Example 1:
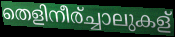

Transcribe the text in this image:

തെളിനീര്ച്ചാലുകള്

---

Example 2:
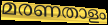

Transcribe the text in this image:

മരണതാളം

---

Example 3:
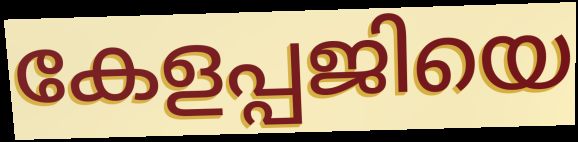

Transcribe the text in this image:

കേളപ്പജിയെ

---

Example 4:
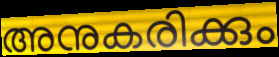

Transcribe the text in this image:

അനുകരിക്കും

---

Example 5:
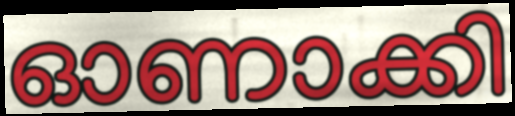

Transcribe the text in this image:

ഓണാക്കി